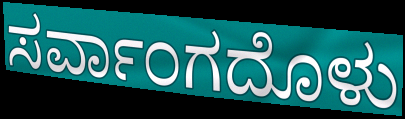
ಸರ್ವಾಂಗದೊಳು